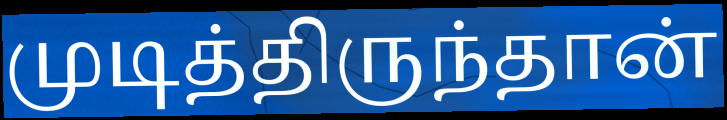
முடித்திருந்தான்